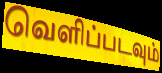
வெளிப்படவும்